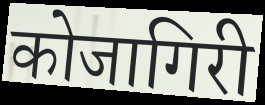
कोजागिरी